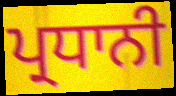
ਪ੍ਰਧਾਨੀ